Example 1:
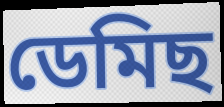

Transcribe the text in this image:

ডেমিছ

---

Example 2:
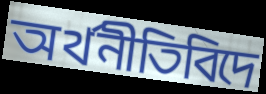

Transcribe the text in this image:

অৰ্থনীতিবিদে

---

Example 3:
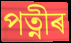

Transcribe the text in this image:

পত্নীৰ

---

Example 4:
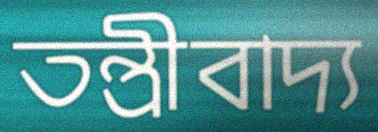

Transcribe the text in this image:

তন্ত্ৰীবাদ্য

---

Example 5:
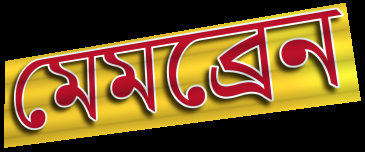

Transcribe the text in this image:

মেমব্ৰেন